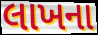
લાખના